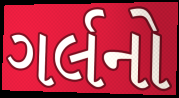
ગર્લનો